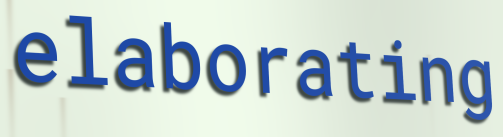
elaborating